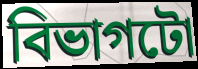
বিভাগটো